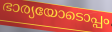
ഭാര്യയോടൊപ്പം